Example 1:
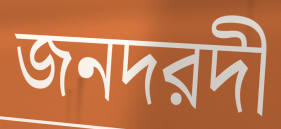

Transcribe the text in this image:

জনদরদী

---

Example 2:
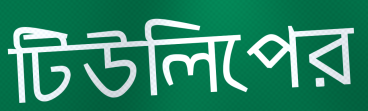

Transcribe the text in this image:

টিউলিপের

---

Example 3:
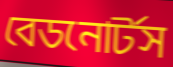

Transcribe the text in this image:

বেডনোর্টস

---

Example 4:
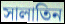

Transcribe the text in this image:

সালাতিন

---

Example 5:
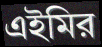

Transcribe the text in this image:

এইমির